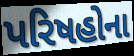
પરિષહોના